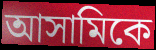
আসামিকে